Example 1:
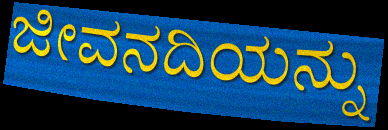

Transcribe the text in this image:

ಜೀವನದಿಯನ್ನು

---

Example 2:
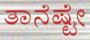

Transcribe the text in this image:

ತಾನೆಷ್ಟೇ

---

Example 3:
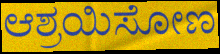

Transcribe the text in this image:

ಆಶ್ರಯಿಸೋಣ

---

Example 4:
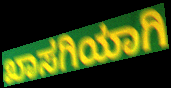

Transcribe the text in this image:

ಖಾಸಗಿಯಾಗಿ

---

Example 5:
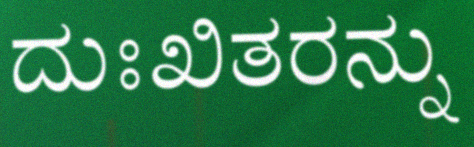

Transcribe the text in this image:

ದುಃಖಿತರನ್ನು